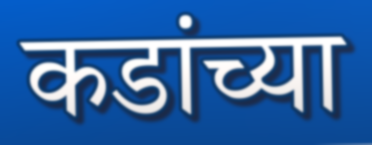
कडांच्या